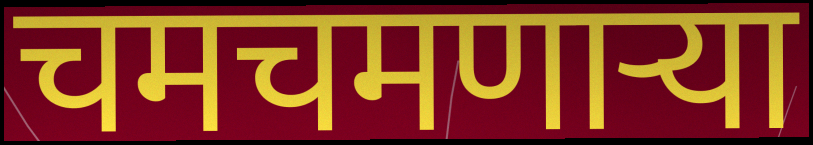
चमचमणार्‍या